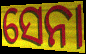
ସେନା